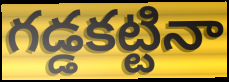
గడ్డకట్టినా